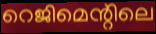
റെജിമെന്റിലെ